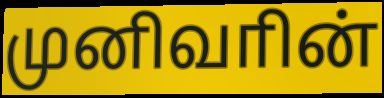
முனிவரின்